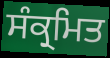
ਸੰਕ੍ਰਮਿਤ